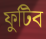
ফুটিব